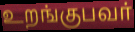
உறங்குபவர்